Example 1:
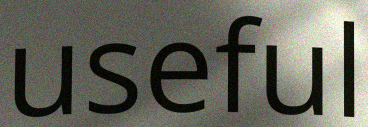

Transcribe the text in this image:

useful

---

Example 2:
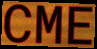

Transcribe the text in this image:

CME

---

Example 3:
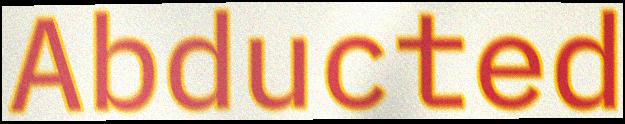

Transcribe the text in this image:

Abducted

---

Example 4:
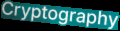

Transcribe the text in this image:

Cryptography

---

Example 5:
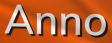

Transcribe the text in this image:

Anno